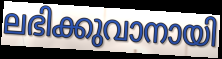
ലഭിക്കുവാനായി